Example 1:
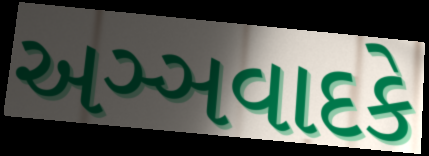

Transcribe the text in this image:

અઞ્ઞવાદકે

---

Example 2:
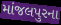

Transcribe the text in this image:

માંજલપુરના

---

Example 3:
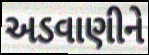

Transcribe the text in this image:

અડવાણીને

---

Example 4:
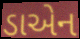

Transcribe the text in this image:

ડાએન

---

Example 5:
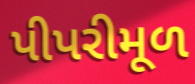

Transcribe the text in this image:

પીપરીમૂળ